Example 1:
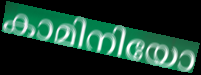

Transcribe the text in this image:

കാമിനിയോ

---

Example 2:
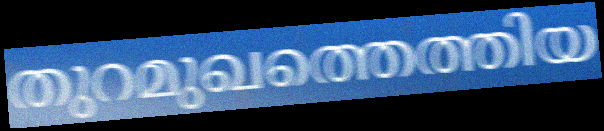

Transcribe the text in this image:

തുറമുഖത്തെത്തിയ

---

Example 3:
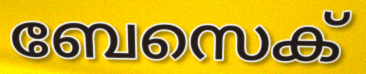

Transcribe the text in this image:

ബേസെക്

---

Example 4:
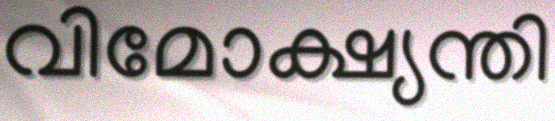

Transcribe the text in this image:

വിമോക്ഷ്യന്തി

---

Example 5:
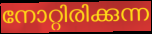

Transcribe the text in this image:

നോറ്റിരിക്കുന്ന